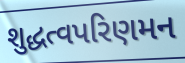
શુદ્ધત્વપરિણમન